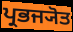
ਪ੍ਰਭਜ੍ਯੋਤ